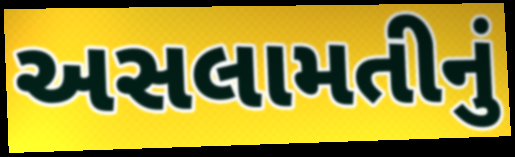
અસલામતીનું